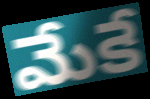
మేకే